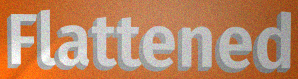
Flattened